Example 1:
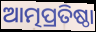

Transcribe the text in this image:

ଆତ୍ମପ୍ରତିଷ୍ଠା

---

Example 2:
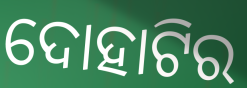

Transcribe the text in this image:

ଦୋହାଟିର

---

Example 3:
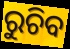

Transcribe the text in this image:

ରୁଚିବ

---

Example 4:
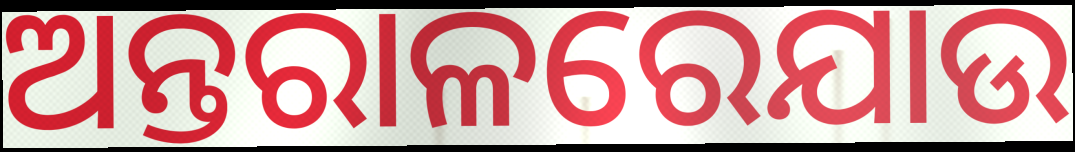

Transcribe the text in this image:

ଅନ୍ତରାଳରେଯାଉ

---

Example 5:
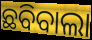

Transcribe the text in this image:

ଛବିବାଲା